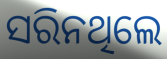
ସରିନଥିଲେ